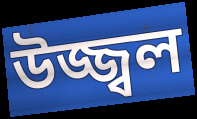
উজ্জ্বল